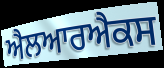
ਐਲਆਰਐਕਸ